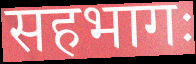
सहभागः